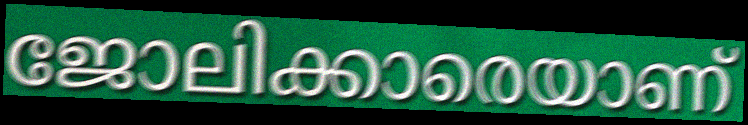
ജോലിക്കാരെയാണ്